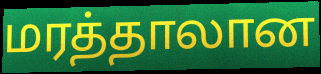
மரத்தாலான